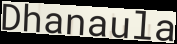
Dhanaula